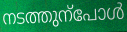
നടത്തുന്പോൾ